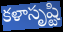
కళాసృష్టి